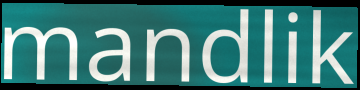
mandlik